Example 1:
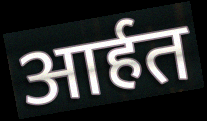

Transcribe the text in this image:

आर्हत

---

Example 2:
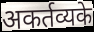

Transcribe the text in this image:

अकर्तव्यके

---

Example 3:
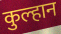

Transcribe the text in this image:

कुल्हान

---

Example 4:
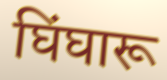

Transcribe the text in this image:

घिंघारू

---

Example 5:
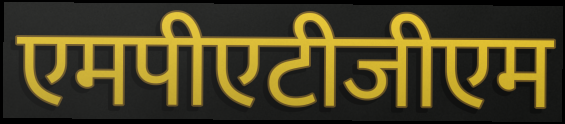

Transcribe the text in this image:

एमपीएटीजीएम